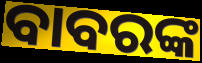
ବାବରଙ୍କ